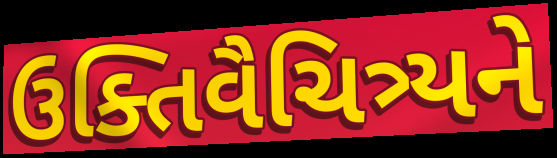
ઉક્તિવૈચિત્ર્યને